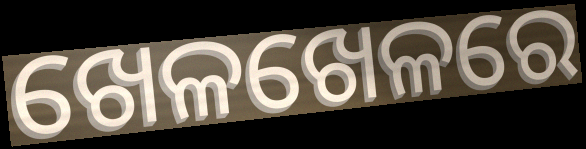
ଖେଳଖେଳରେ